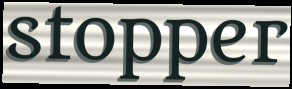
stopper